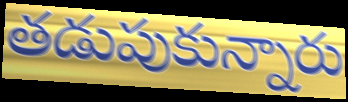
తడుపుకున్నారు